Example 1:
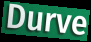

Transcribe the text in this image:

Durve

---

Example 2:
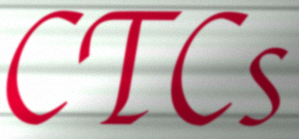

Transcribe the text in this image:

CTCs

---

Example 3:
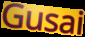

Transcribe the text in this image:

Gusai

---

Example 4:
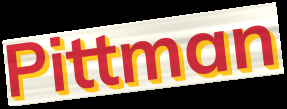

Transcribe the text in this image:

Pittman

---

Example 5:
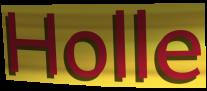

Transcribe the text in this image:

Holle